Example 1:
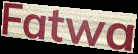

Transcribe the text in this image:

Fatwa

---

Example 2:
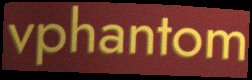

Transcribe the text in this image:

vphantom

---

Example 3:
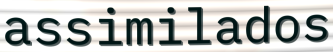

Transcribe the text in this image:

assimilados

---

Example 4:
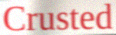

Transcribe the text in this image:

Crusted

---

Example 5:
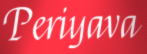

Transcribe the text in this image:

Periyava